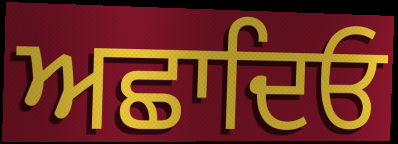
ਅਛਾਦਿਓ